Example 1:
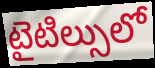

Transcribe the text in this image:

టైటిల్సులో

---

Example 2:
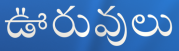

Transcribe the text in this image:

ఊరువులు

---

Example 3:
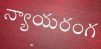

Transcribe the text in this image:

న్యాయరంగ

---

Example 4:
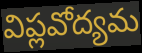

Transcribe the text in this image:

విప్లవోద్యమ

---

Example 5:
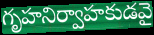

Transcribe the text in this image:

గృహనిర్వాహకుడవై